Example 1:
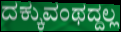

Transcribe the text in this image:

ದಕ್ಕುವಂಥದ್ದಲ್ಲ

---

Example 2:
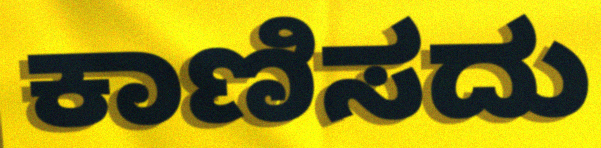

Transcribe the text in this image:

ಕಾಣಿಸದು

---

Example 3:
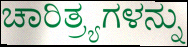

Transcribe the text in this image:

ಚಾರಿತ್ರ್ಯಗಳನ್ನು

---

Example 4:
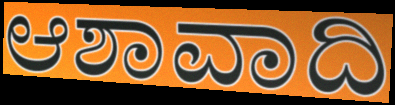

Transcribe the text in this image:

ಆಶಾವಾದಿ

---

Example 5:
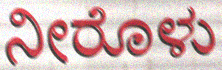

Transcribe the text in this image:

ನೀರೊಳು